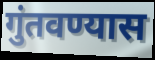
गुंतवण्यास